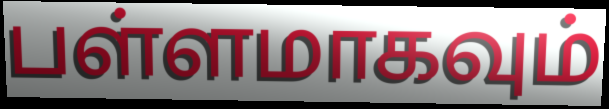
பள்ளமாகவும்